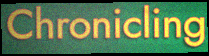
Chronicling